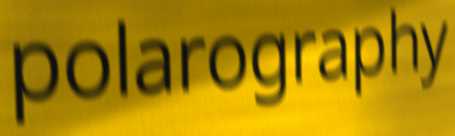
polarography